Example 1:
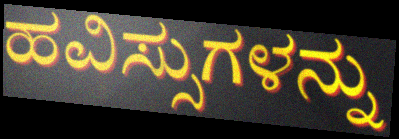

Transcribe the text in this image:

ಹವಿಸ್ಸುಗಳನ್ನು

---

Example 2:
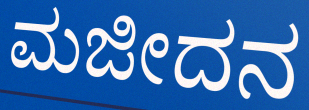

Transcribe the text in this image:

ಮಜೀದನ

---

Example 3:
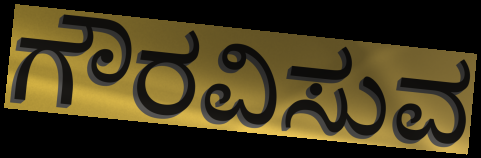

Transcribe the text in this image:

ಗೌರವಿಸುವ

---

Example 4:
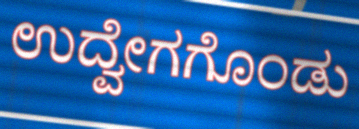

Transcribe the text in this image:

ಉದ್ವೇಗಗೊಂಡು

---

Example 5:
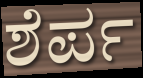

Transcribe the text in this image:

ಶೆರ್ಪ